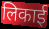
लिकाई